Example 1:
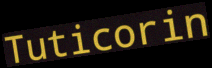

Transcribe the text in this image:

Tuticorin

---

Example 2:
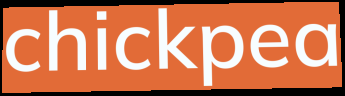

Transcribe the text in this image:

chickpea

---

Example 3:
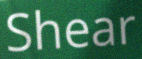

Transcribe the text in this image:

Shear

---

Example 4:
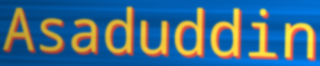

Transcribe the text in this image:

Asaduddin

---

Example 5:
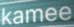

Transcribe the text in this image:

kamee